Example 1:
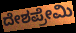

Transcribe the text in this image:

ದೇಶಪ್ರೇಮಿ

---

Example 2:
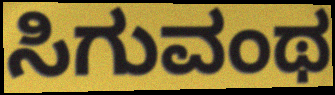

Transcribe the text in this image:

ಸಿಗುವಂಥ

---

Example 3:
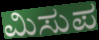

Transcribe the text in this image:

ಮಿಸುಪ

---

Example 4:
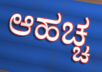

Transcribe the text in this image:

ಆಹಚ್ಚ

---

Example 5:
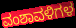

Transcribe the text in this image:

ವಂಶಾವಳಿಗಳ